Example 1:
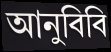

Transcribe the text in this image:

আনুবিবি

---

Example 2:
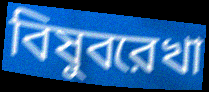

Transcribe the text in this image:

বিষুবরেখা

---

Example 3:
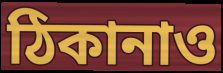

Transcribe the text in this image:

ঠিকানাও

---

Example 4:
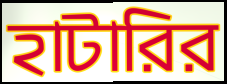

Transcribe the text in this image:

হাটারির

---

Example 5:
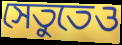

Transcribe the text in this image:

সেতুতেও